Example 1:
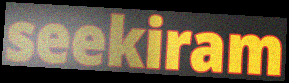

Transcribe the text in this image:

seekiram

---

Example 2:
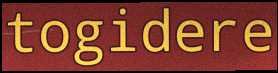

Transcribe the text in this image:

togidere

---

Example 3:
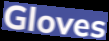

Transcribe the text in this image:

Gloves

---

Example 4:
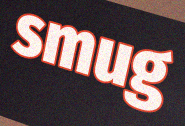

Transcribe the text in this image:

smug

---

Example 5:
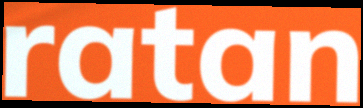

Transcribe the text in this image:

ratan